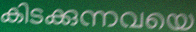
കിടക്കുന്നവയെ